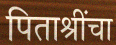
पिताश्रींचा